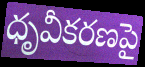
ధృవీకరణపై